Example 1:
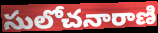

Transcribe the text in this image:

సులోచనారాణి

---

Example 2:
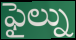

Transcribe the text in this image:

ఫైల్ను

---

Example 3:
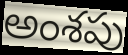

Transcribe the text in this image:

అంశపు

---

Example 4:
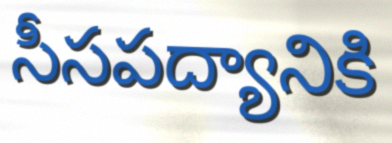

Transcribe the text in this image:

సీసపద్యానికి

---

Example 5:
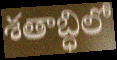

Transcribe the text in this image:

శతాబ్ధిలో